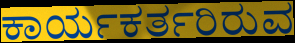
ಕಾರ್ಯಕರ್ತರಿರುವ